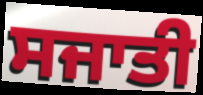
ਸਜਾਤੀ